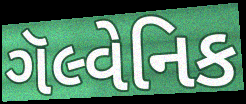
ગૅલ્વેનિક